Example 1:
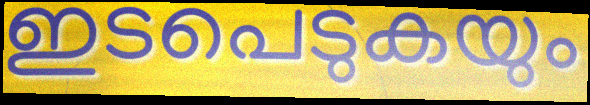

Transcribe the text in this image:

ഇടപെടുകയും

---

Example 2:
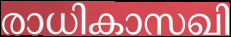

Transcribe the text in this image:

രാധികാസഖി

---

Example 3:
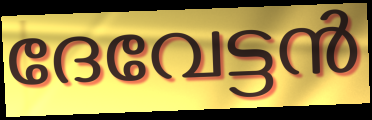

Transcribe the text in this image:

ദേവേട്ടൻ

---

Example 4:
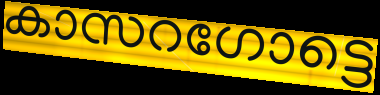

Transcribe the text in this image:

കാസറഗോട്ടെ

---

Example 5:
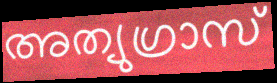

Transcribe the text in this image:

അത്യുഗ്രാസ്